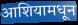
आशियामधून